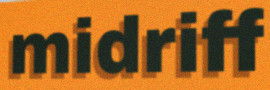
midriff